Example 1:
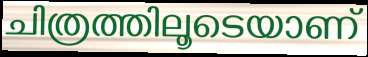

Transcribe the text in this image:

ചിത്രത്തിലൂടെയാണ്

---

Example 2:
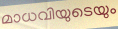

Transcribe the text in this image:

മാധവിയുടെയും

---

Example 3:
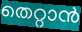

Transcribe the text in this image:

തെറ്റാൻ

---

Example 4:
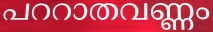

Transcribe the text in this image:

പററാതവണ്ണം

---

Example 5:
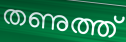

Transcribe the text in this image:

തണുത്ത്